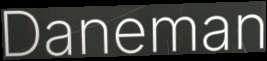
Daneman